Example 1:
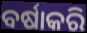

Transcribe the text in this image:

ବର୍ଷାକରି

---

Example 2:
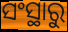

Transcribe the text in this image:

ସଂସ୍ଥାରୁ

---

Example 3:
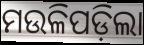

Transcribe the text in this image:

ମଉଳିପଡ଼ିଲା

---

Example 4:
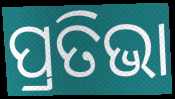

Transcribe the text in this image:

ପ୍ରତିଭା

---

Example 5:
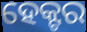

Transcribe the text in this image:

ହେକ୍ଟର